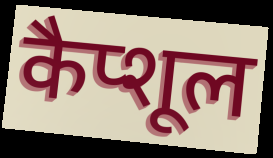
कैप्शूल